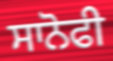
ਸਾਨੋਫੀ